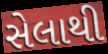
સેલાથી